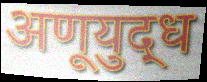
अणूयुद्ध